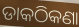
ଡାକଠିକଣା